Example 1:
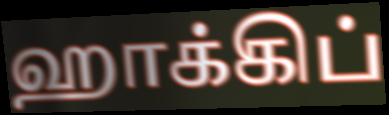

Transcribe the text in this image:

ஹாக்கிப்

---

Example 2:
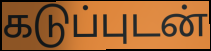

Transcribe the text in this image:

கடுப்புடன்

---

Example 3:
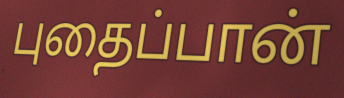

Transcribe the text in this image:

புதைப்பான்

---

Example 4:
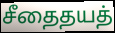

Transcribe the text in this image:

சீதைதயத்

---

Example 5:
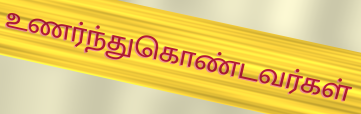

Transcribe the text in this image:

உணர்ந்துகொண்டவர்கள்